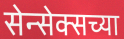
सेन्सेक्सच्या